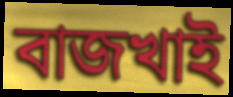
বাজখাই